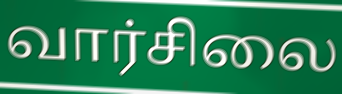
வார்சிலை